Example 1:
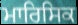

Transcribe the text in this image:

ਮਾਰਿਸਿਕ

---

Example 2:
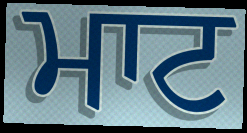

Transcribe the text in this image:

ਮਾਟ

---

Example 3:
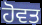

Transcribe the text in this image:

ਹੋਵਤ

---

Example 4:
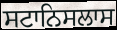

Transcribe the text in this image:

ਸਟਾਨਿਸਲਾਸ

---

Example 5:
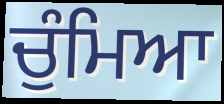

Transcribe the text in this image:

ਚੁੰਮਿਆ